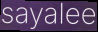
sayalee